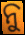
ନୁ